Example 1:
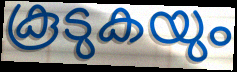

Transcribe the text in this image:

കൂടുകയും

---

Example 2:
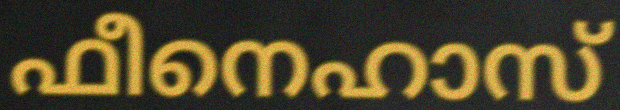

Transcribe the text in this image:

ഫീനെഹാസ്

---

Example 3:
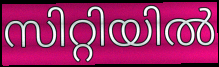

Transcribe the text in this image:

സിറ്റിയിൽ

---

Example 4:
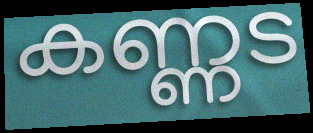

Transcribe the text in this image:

കണ്ണട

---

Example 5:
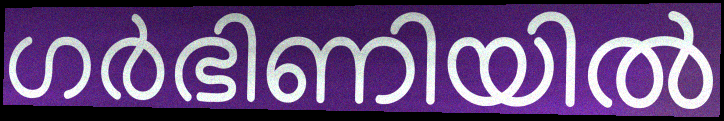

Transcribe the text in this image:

ഗർഭിണിയിൽ